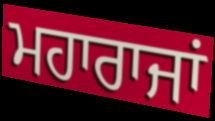
ਮਹਾਰਾਜਾਂ